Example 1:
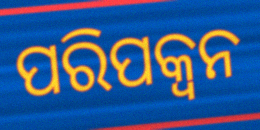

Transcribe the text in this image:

ପରିପକ୍ବନ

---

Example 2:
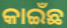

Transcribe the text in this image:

କାଇଁଛ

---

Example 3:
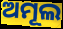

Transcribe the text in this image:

ଅମୂଲ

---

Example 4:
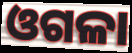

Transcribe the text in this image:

ଓଗଳା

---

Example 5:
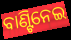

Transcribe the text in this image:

ବାଣ୍ଟିନେଇ